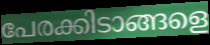
പേരക്കിടാങ്ങളെ